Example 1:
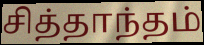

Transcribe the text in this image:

சித்தாந்தம்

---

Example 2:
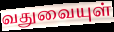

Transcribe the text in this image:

வதுவையுள்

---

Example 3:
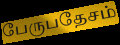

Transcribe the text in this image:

பேருபதேசம்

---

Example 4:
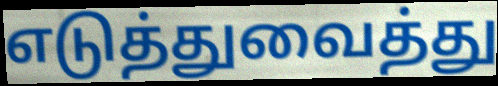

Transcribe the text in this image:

எடுத்துவைத்து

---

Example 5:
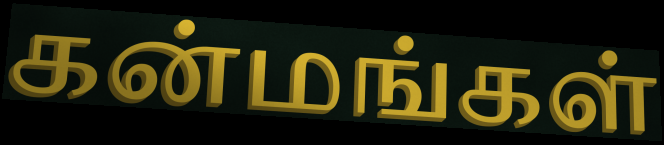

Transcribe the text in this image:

கன்மங்கள்